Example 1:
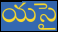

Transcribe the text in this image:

యసై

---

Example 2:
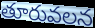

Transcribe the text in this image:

తూరువలన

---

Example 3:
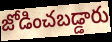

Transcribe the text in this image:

జోడించబడ్డారు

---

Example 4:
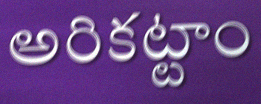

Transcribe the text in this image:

అరికట్టాం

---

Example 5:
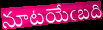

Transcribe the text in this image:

నూటయేఁబది